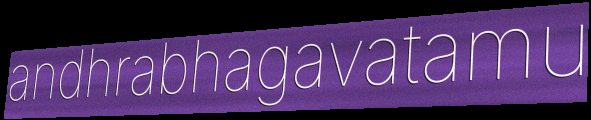
andhrabhagavatamu